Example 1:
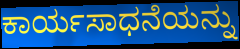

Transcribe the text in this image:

ಕಾರ್ಯಸಾಧನೆಯನ್ನು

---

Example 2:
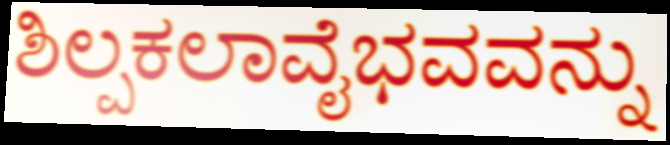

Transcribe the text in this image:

ಶಿಲ್ಪಕಲಾವೈಭವವನ್ನು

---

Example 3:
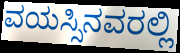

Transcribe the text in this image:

ವಯಸ್ಸಿನವರಲ್ಲಿ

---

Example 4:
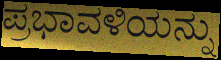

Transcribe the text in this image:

ಪ್ರಭಾವಳಿಯನ್ನು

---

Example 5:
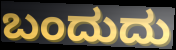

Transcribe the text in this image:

ಬಂದುದು